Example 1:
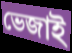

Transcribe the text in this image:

ভেজাই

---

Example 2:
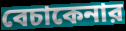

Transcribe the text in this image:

বেচাকেনার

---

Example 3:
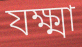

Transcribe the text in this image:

যক্ষ্মা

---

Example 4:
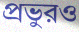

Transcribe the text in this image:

প্রভুরও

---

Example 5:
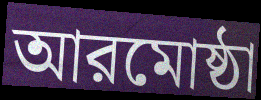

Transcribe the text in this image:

আরমোষ্ঠা